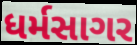
ધર્મસાગર